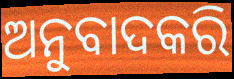
ଅନୁବାଦକରି